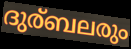
ദുര്ബലരും